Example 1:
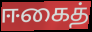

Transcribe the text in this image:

ஈகைத்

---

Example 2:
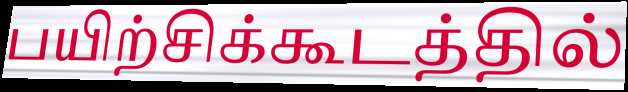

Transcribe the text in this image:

பயிற்சிக்கூடத்தில்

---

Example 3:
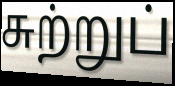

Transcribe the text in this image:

சுற்றுப்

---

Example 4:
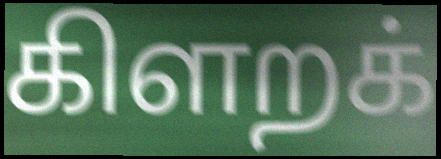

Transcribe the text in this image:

கிளறக்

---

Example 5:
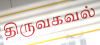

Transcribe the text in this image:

திருவகவல்